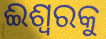
ଈଶ୍ୱରକୁ